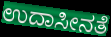
ಉದಾಸೀನತೆ